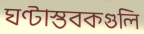
ঘণ্টাস্তবকগুলি